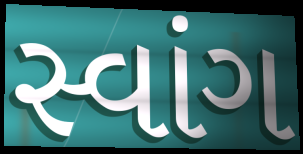
સ્વાંગ